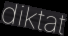
diktat